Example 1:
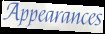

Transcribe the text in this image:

Appearances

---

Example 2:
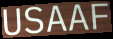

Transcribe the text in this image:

USAAF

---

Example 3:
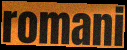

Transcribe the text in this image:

romani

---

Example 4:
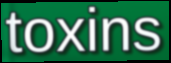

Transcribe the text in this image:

toxins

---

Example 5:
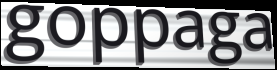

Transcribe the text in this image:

goppaga